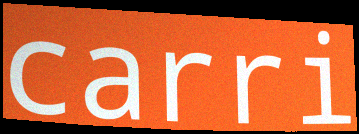
carri